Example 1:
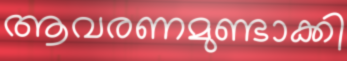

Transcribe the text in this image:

ആവരണമുണ്ടാക്കി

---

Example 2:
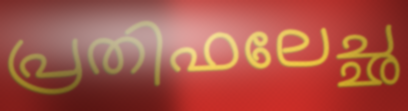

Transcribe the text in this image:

പ്രതിഫലേച്ഛ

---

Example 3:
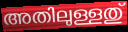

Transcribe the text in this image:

അതിലുള്ളതു്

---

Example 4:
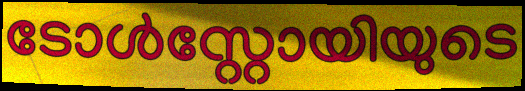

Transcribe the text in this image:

ടോൾസ്റ്റോയിയുടെ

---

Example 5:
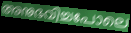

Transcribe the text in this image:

അനുഭവിച്ചപോലെ